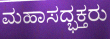
ಮಹಾಸದ್ಭಕ್ತರು